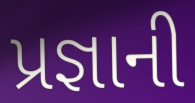
પ્રજ્ઞાની